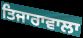
ਤਿਜਾਰਾਵਾਲਾ